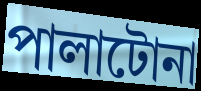
পালাটোনা